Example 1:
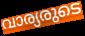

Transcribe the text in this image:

വാര്യരുടെ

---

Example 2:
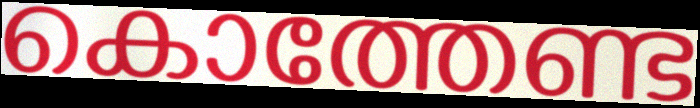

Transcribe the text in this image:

കൊത്തേണ്ട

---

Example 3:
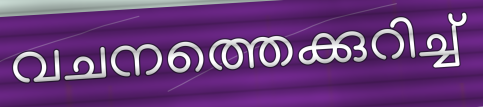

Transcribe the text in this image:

വചനത്തെക്കുറിച്ച്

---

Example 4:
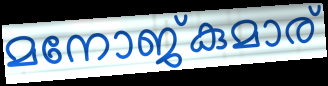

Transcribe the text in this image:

മനോജ്കുമാര്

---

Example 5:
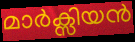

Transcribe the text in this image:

മാർക്സിയൻ